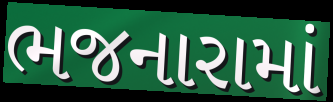
ભજનારામાં